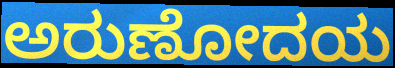
ಅರುಣೋದಯ